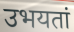
उभयतां